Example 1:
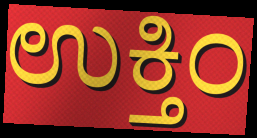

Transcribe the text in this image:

ಉಕ್ತಿಂ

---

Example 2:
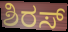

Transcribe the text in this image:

ಶಿರಸ್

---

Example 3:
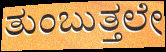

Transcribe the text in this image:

ತುಂಬುತ್ತಲೇ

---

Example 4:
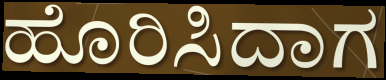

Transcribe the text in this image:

ಹೊರಿಸಿದಾಗ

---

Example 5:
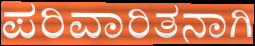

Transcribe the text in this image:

ಪರಿವಾರಿತನಾಗಿ